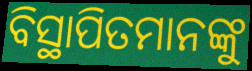
ବିସ୍ଥାପିତମାନଙ୍କୁ